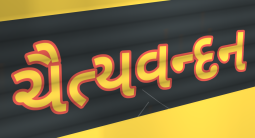
ચૈત્યવન્દન